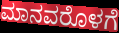
ಮಾನವರೊಳಗೆ